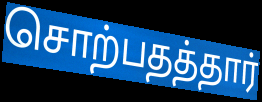
சொற்பதத்தார்